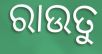
ରାଉତୁ